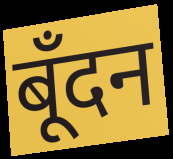
बूँदन